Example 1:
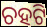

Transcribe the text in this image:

ଚହଟି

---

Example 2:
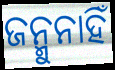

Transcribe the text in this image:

ଜନ୍ମୁନାହିଁ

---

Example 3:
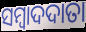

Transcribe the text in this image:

ସମ୍ବାଦଦାତା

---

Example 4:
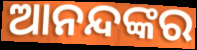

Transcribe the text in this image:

ଆନନ୍ଦଙ୍କର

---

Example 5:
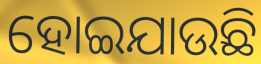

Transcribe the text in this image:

ହୋଇଯାଉଛି